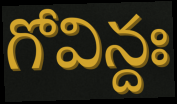
గోవిన్దః